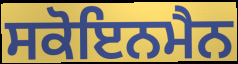
ਸਕੋਇਨਮੈਨ